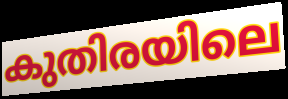
കുതിരയിലെ